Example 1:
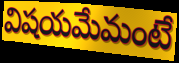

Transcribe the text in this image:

విషయమేమంటే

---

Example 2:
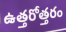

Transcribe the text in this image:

ఉత్తరోత్తరం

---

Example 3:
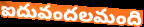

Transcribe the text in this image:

ఐదువందలమంది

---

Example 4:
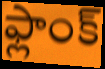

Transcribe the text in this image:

ఫ్లాంక్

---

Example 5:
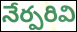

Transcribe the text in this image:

నేర్పరివి